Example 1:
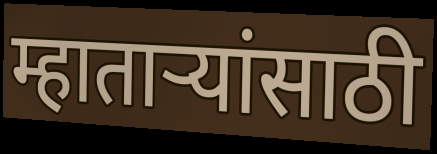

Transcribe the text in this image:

म्हाताऱ्यांसाठी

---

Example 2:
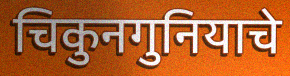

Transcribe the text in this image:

चिकुनगुनियाचे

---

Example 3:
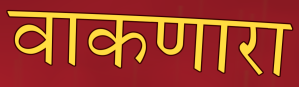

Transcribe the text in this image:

वाकणारा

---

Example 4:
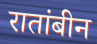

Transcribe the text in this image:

रातांबीन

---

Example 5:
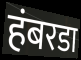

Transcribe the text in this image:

हंबरडा